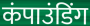
कंपाउंडिंग